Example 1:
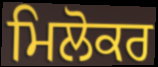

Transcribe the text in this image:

ਮਿਲੋਕਰ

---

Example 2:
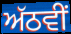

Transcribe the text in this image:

ਅੱਠਵੀਂ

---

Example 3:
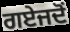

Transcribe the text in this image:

ਗਏਜਦੋਂ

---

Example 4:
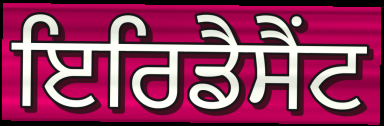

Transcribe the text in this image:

ਇਰਿਡੈਸੈਂਟ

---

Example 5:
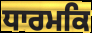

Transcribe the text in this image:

ਧਾਰਮਕਿ